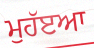
ਮੁਹੱੲਆ